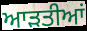
ਆੜਤੀਆਂ